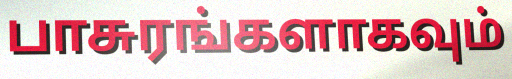
பாசுரங்களாகவும்